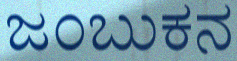
ಜಂಬುಕನ